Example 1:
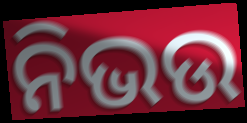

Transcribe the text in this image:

ନିଭଉ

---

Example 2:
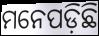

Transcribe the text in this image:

ମନେପଡ଼ିଛି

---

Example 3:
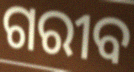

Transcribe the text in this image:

ଗରୀବ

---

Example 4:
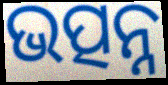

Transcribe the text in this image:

ଭତ୍ପନ୍ନ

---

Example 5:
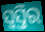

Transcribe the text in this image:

ସ୍ୱସ୍ତିର